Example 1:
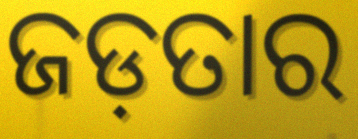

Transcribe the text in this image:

ଜଡ଼ତାର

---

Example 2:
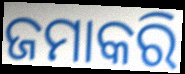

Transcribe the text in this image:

ଜମାକରି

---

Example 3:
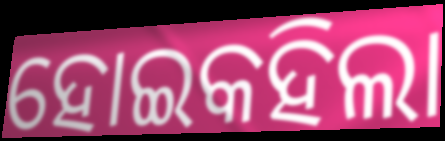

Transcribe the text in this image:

ହୋଇକହିଲା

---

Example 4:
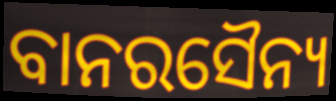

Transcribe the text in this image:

ବାନରସୈନ୍ୟ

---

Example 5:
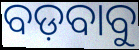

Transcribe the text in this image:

ବଡ଼ବାବୁ